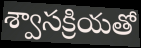
శ్వాసక్రియతో